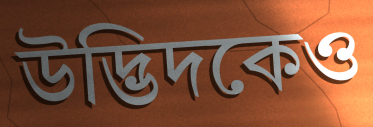
উদ্ভিদকেও